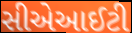
સીએઆઈટી